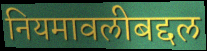
नियमावलीबद्दल